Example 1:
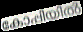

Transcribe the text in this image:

കോപ്പിയിൽ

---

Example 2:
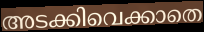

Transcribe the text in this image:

അടക്കിവെക്കാതെ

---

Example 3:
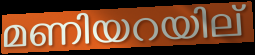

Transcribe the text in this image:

മണിയറയില്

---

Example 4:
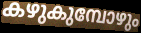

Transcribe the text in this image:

കഴുകുമ്പോഴും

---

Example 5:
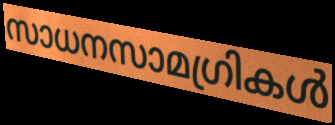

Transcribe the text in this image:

സാധനസാമഗ്രികൾ